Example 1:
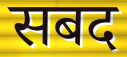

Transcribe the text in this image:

सबद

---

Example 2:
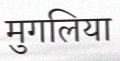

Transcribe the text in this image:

मुगलिया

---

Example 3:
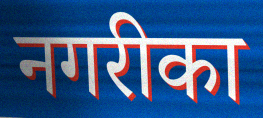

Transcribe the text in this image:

नगरीका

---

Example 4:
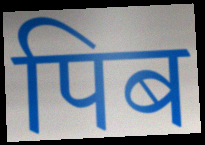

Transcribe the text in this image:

पिब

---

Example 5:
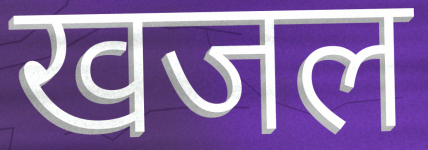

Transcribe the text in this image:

खजल